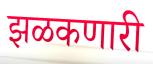
झळकणारी